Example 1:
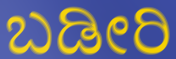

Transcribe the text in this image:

ಬಡೀರಿ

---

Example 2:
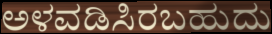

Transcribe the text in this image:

ಅಳವಡಿಸಿರಬಹುದು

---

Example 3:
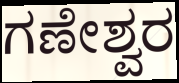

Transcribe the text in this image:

ಗಣೇಶ್ವರ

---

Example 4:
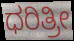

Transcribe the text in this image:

ಧರಿತ್ರೀ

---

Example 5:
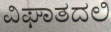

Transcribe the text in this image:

ವಿಘಾತದಲಿ